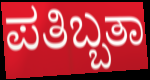
ಪತಿಬ್ಬತಾ